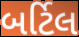
બર્ટિલ